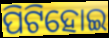
ପିଟିହୋଇ